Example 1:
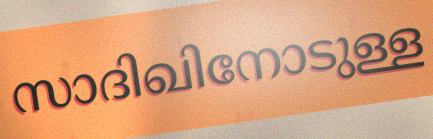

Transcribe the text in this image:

സാദിഖിനോടുള്ള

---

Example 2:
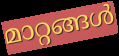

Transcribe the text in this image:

മാറ്റങ്ങൾ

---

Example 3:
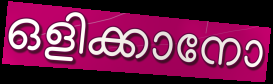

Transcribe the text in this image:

ഒളിക്കാനോ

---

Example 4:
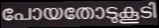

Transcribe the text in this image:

പോയതോടുകൂടി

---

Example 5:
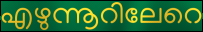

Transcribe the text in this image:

എഴുന്നൂറിലേറെ